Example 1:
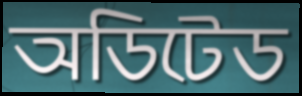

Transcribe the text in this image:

অডিটেড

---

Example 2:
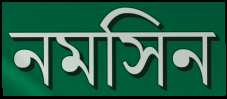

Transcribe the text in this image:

নমসিন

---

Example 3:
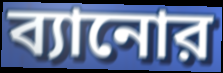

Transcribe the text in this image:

ব্যানোর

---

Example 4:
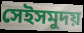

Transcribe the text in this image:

সেইসমুদয়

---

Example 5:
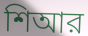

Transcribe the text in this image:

শিআর